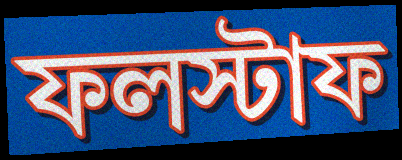
ফলস্টাফ